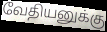
வேதியனுக்கு